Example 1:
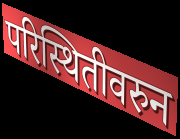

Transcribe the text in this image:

परिस्थितीवरुन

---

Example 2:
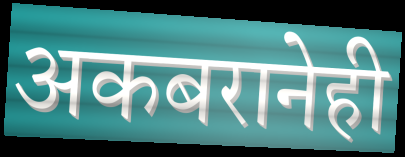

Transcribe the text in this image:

अकबरानेही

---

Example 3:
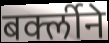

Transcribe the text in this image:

बर्क्लीने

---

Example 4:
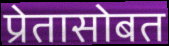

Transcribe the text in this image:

प्रेतासोबत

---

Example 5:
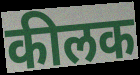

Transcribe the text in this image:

कीलक